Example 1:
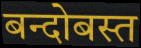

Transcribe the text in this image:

बन्दोबस्त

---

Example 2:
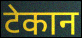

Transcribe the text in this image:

टेकान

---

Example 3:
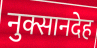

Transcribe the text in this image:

नुक्सानदेह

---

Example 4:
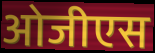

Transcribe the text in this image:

ओजीएस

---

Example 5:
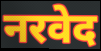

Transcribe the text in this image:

नरवेद